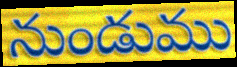
నుండుము